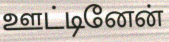
ஊட்டினேன்